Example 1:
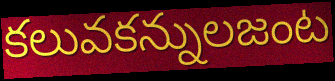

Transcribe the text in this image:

కలువకన్నులజంట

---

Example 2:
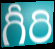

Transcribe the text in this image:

గీరి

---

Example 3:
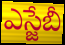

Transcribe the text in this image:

ఎస్జేబీ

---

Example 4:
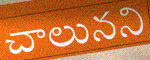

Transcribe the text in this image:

చాలునని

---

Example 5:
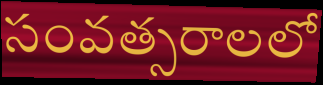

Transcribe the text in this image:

సంవత్సరాలలో